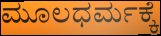
ಮೂಲಧರ್ಮಕ್ಕೆ